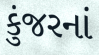
કુંજરનાં